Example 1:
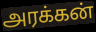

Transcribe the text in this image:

அரக்கன்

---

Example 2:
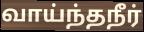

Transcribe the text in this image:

வாய்ந்தநீர்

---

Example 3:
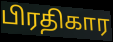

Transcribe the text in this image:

பிரதிகார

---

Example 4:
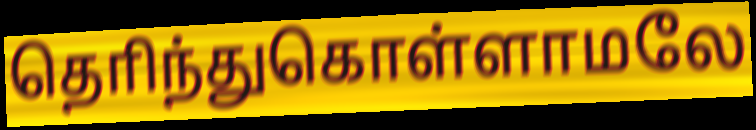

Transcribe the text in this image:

தெரிந்துகொள்ளாமலே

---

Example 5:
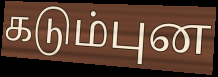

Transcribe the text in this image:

கடும்புன